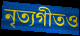
নৃত্যগীতও